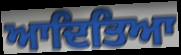
ਆਦਿਤਿਆ